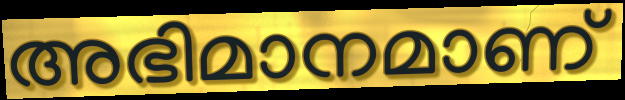
അഭിമാനമാണ്